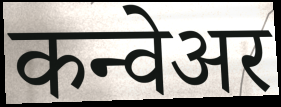
कन्वेअर